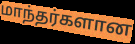
மாந்தர்களான